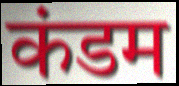
कंडम